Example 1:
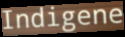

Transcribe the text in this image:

Indigene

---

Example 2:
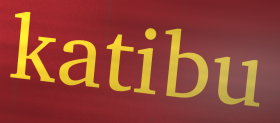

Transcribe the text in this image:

katibu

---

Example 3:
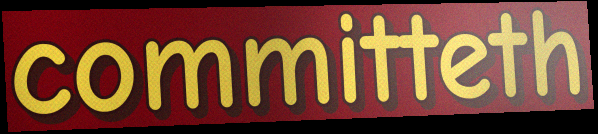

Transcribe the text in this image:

committeth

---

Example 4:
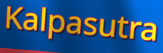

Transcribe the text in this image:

Kalpasutra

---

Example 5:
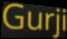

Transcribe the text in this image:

Gurji